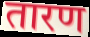
तारण